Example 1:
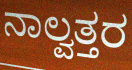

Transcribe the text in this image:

ನಾಲ್ವತ್ತರ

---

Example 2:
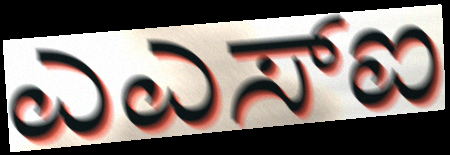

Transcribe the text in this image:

ಎಎಸ್ಐ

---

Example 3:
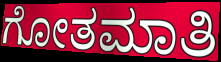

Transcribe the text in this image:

ಗೋತಮಾತಿ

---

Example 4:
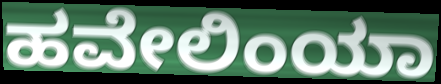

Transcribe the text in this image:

ಹವೇಲಿಂಯಾ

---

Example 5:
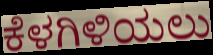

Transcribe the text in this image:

ಕೆಳಗಿಳಿಯಲು